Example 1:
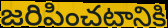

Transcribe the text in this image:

జరిపించటానికి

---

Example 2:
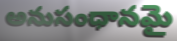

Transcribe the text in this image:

అనుసంధానమై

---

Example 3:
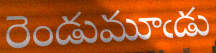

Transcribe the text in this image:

రెండుమూఁడు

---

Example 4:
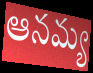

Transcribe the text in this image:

ఆనమ్య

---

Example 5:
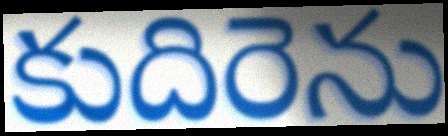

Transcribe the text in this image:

కుదిరెను